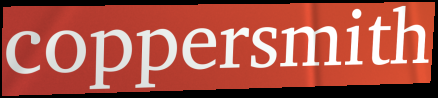
coppersmith